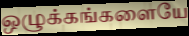
ஒழுக்கங்களையே